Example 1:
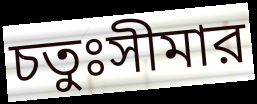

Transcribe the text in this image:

চতুঃসীমার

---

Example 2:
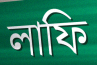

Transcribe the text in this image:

লাফি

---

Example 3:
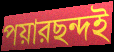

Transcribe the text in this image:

পয়ারছন্দই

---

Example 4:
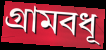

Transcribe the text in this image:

গ্রামবধূ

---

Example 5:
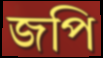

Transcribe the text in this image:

জপি